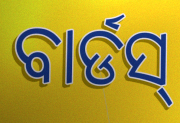
ବାର୍ଡସ୍